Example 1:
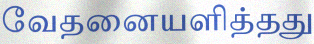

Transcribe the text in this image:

வேதனையளித்தது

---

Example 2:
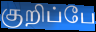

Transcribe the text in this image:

குறிப்பே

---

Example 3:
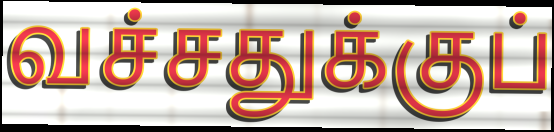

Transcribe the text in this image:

வச்சதுக்குப்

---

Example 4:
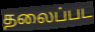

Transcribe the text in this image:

தலைப்பட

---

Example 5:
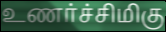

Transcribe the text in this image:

உணர்ச்சிமிகு